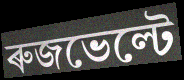
ৰুজভেল্টে